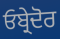
ਓਬ੍ਰੇਦੋਰ